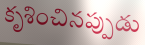
కృశించినప్పుడు